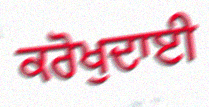
ਕਰੋਖੁਦਾਈ